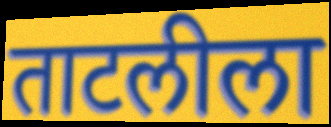
ताटलीला